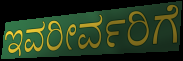
ಇವರೀರ್ವರಿಗೆ